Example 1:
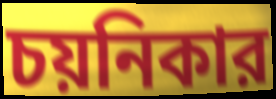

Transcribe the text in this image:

চয়নিকার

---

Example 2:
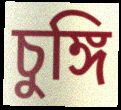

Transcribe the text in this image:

চুঙ্গি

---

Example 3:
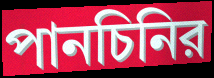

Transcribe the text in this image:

পানচিনির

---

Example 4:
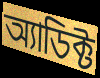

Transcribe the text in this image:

অ্যাডিক্ট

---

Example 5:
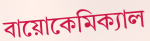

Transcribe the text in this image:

বায়োকেমিক্যাল